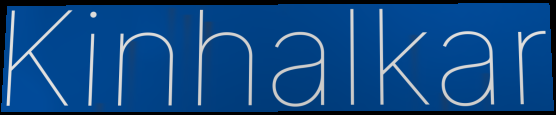
Kinhalkar